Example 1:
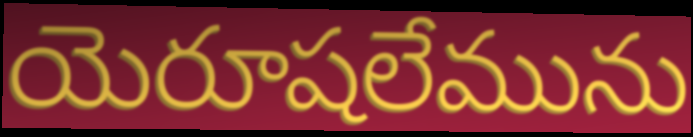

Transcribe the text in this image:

యెరూషలేమును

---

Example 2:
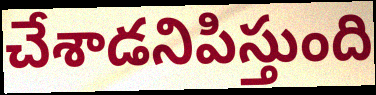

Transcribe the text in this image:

చేశాడనిపిస్తుంది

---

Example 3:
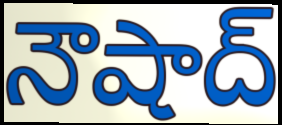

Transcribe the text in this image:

నౌషాద్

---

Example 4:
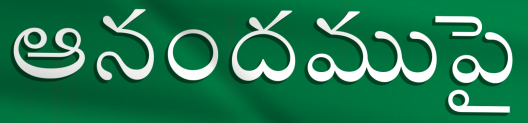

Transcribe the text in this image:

ఆనందముపై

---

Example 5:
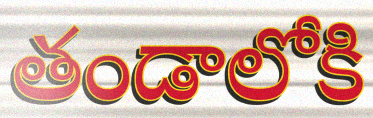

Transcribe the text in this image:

తండాలోకి